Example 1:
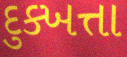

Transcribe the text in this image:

દુક્ખત્તા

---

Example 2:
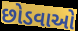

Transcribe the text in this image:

છોડવાઓ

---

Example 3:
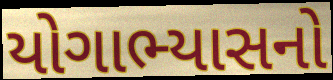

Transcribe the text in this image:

યોગાભ્યાસનો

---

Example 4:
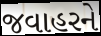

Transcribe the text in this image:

જવાહરને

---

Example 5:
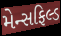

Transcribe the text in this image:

મેન્સફિલ્ડ